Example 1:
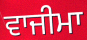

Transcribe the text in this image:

ਵਾਜੀਮਾ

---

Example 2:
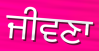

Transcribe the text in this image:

ਜੀਵਣਾ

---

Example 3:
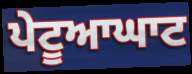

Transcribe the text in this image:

ਪੇਟੂਆਘਾਟ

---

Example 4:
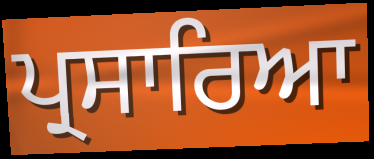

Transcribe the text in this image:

ਪ੍ਰਸਾਰਿਆ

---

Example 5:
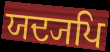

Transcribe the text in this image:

ਯਦ੍ਯਪਿ